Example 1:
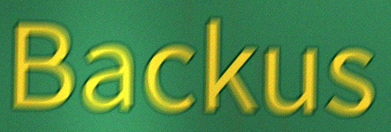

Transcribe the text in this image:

Backus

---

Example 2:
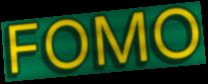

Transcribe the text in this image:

FOMO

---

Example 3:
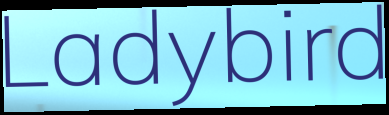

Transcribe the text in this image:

Ladybird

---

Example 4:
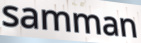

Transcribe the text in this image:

samman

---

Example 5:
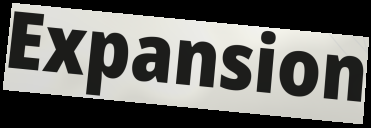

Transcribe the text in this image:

Expansion